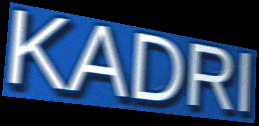
KADRI